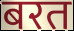
बरत